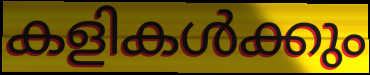
കളികൾക്കും